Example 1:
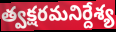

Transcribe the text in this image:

త్వక్షరమనిర్దేశ్య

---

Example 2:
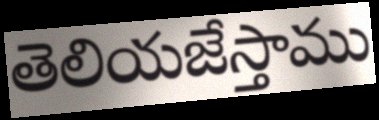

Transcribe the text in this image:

తెలియజేస్తాము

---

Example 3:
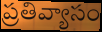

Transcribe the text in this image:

ప్రతివ్యాసం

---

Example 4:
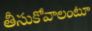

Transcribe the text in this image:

తీసుకోవాలంటూ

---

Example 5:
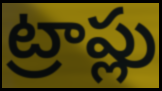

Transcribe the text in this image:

ట్రాప్లు